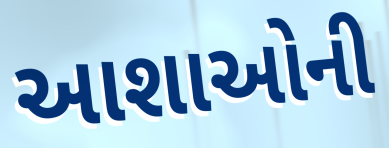
આશાઓની